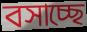
বসাচ্ছে